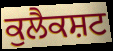
ਕੁਲੈਕਸ਼ਟ